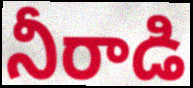
నీరాడి